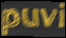
puvi